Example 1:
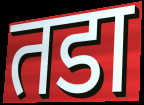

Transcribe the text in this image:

तडा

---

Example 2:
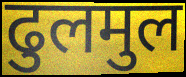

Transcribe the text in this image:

ढुलमुल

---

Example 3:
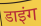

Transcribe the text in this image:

डाइंग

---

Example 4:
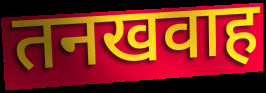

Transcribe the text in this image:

तनखवाह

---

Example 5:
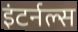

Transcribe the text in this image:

इंटर्नल्स